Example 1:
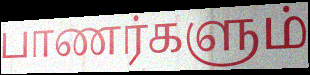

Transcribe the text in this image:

பாணர்களும்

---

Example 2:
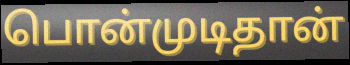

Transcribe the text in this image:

பொன்முடிதான்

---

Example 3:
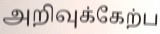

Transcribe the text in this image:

அறிவுக்கேற்ப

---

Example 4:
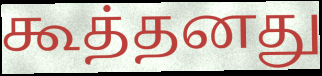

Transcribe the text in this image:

கூத்தனது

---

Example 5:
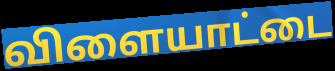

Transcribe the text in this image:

விளையாட்டை